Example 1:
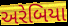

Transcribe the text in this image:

અરેબિયા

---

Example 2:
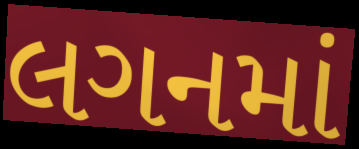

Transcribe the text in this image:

લગનમાં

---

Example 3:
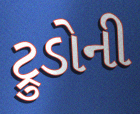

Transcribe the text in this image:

ટ્રુડોની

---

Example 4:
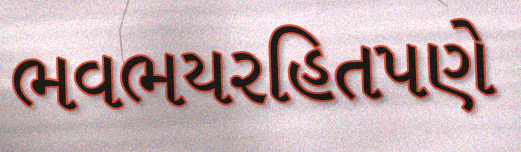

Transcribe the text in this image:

ભવભયરહિતપણે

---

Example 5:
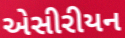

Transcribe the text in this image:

એસીરીયન